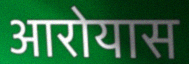
आरोयास